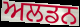
ਅਲਡਨ